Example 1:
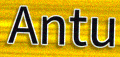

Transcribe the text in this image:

Antu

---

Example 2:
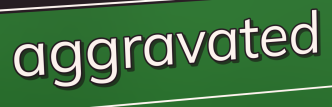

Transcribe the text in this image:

aggravated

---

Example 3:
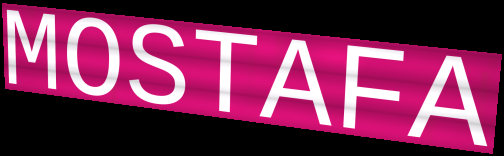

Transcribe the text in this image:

MOSTAFA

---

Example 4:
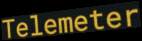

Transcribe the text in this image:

Telemeter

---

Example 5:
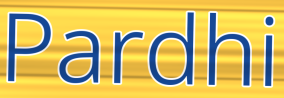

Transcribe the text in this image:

Pardhi